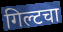
गिल्टचा